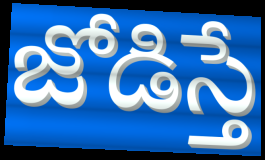
జోడిస్తే